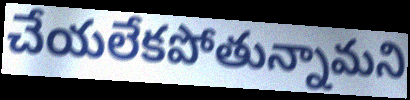
చేయలేకపోతున్నామని